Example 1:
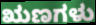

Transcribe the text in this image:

ಋಣಗಳು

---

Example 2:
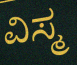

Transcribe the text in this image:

ವಿಸ್ಮ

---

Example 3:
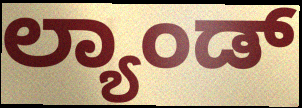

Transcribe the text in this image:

ಲ್ಯಾಂಡ್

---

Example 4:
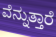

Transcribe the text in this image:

ವೆನ್ನುತ್ತಾರೆ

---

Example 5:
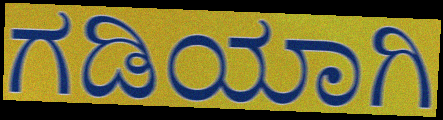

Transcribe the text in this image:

ಗಡಿಯಾಗಿ